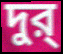
দুর্